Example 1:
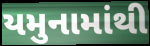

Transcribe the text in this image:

યમુનામાંથી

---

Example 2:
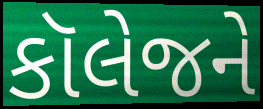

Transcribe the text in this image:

કૉલેજને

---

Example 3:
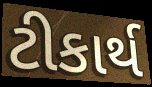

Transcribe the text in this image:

ટીકાર્થ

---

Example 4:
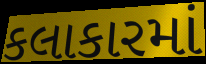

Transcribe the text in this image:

કલાકારમાં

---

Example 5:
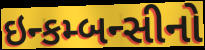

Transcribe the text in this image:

ઇન્કમ્બન્સીનો